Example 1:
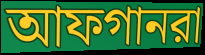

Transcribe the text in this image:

আফগানরা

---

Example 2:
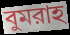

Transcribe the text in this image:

বুমরাহ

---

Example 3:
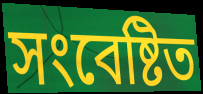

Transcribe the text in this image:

সংবেষ্টিত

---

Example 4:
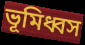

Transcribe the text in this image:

ভূমিধ্বস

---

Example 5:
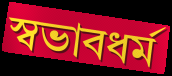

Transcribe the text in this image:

স্বভাবধর্ম